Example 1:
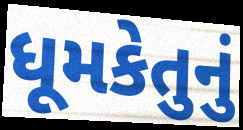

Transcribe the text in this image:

ધૂમકેતુનું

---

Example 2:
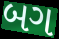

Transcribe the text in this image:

બગ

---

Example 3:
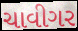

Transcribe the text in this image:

ચાવીગર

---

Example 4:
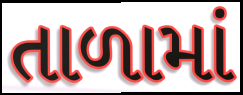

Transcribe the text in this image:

તાળામાં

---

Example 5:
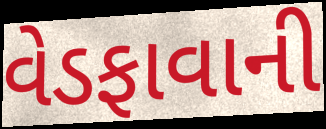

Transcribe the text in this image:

વેડફાવાની